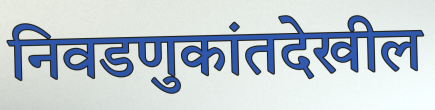
निवडणुकांतदेखील